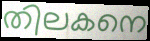
തിലകനെ